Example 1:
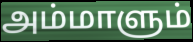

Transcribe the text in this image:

அம்மாளும்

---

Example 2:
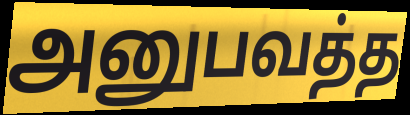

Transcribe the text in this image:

அனுபவத்த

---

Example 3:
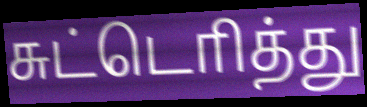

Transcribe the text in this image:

சுட்டெரித்து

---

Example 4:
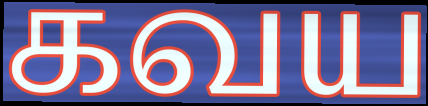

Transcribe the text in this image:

கவய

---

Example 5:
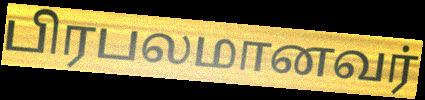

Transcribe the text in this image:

பிரபலமானவர்